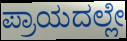
ಪ್ರಾಯದಲ್ಲೇ